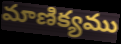
మాణిక్యము